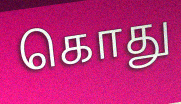
கொது